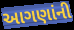
આગણાંની